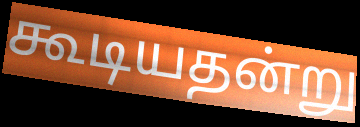
கூடியதன்று